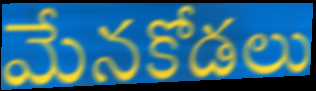
మేనకోడలు